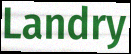
Landry